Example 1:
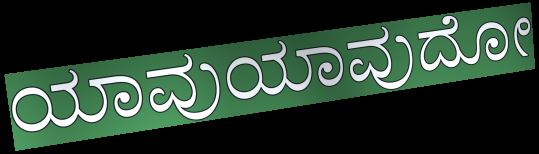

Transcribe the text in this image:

ಯಾವುಯಾವುದೋ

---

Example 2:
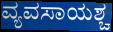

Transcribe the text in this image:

ವ್ಯವಸಾಯಶ್ಚ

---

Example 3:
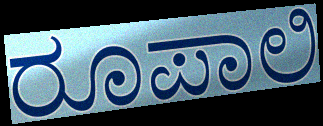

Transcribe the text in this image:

ರೂಪಾಲಿ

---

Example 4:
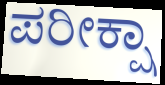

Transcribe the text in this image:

ಪರೀಕ್ಷಾ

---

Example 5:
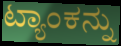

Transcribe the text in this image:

ಟ್ಯಾಂಕನ್ನು